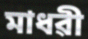
মাধৱী